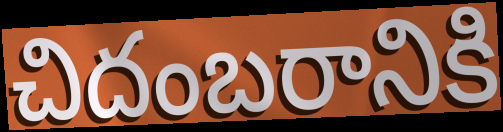
చిదంబరానికి